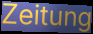
Zeitung